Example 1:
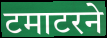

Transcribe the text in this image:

टमाटरने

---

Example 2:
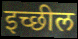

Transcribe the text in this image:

इच्छील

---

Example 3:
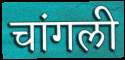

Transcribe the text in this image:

चांगली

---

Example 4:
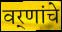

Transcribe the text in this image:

वर्णांचे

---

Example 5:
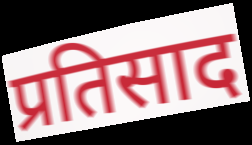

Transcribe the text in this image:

प्रतिसाद